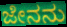
ಜೇನನು